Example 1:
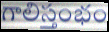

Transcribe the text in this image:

గాలిస్తంభం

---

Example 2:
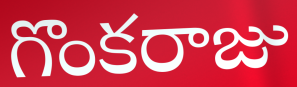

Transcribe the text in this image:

గొంకరాజు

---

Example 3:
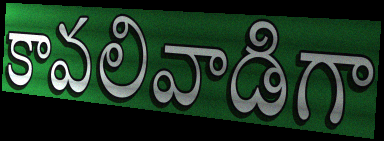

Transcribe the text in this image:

కావలివాడిగా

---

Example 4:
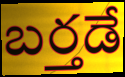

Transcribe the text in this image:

బర్తడే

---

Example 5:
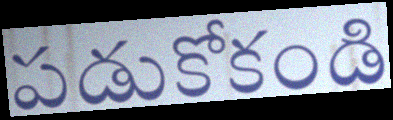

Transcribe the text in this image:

పడుకోకండి